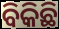
ବିକିଛି